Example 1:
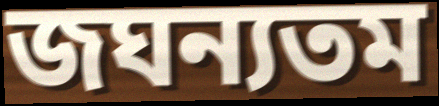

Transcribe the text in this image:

জঘন্যতম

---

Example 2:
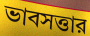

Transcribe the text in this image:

ভাবসত্তার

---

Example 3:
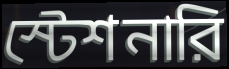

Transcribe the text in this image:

স্টেশনারি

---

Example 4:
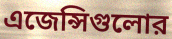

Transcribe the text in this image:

এজেন্সিগুলোর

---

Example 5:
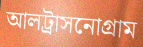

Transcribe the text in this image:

আলট্রাসনোগ্রাম